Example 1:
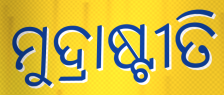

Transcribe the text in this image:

ମୁଦ୍ରାଷ୍ଟୀତି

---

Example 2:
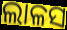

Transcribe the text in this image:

ଲାଳସ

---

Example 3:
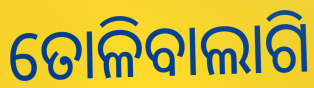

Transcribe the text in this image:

ତୋଳିବାଲାଗି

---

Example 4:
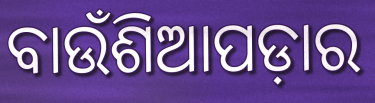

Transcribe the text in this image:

ବାଉଁଶିଆପଡ଼ାର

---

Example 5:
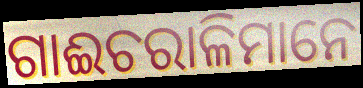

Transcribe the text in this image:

ଗାଈଚରାଳିମାନେ